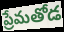
ప్రేమతోడ